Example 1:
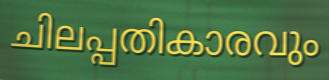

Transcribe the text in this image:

ചിലപ്പതികാരവും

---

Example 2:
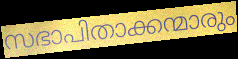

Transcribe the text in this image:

സഭാപിതാക്കന്മാരും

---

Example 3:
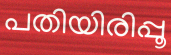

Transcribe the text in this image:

പതിയിരിപ്പൂ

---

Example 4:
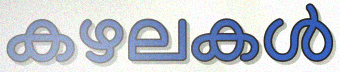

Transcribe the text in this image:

കഴലകൾ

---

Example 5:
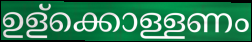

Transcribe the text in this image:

ഉള്ക്കൊള്ളണം